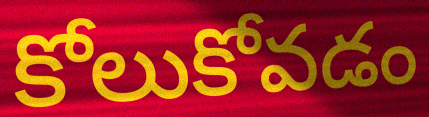
కోలుకోవడం